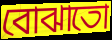
বোঝাতো